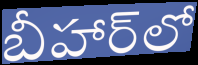
బీహార్‌లో